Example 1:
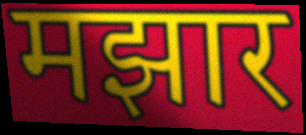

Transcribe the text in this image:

मझार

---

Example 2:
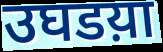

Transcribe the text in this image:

उघडय़ा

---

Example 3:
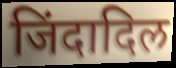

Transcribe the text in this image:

जिंदादिल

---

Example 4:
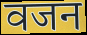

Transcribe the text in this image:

वजन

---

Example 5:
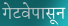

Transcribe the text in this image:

गेटवेपासून